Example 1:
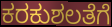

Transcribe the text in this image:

ಕರಕುಶಲತೆಗೆ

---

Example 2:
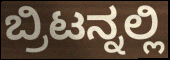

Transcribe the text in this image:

ಬ್ರಿಟನ್ನಲ್ಲಿ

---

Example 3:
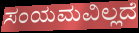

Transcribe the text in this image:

ಸಂಯಮವಿಲ್ಲದೆ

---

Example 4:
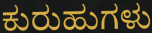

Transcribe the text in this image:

ಕುರುಹುಗಳು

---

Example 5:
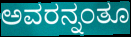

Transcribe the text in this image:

ಅವರನ್ನಂತೂ